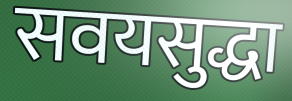
सवयसुद्धा